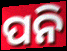
ପନି